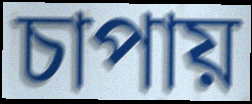
চাপায়